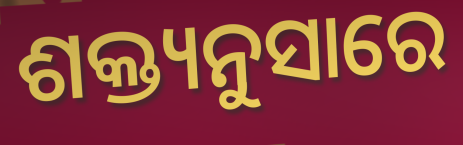
ଶକ୍ତ୍ୟନୁସାରେ